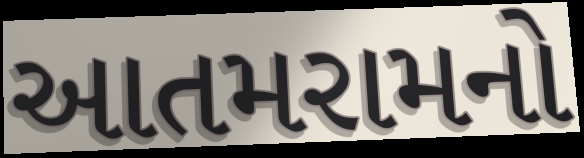
આતમરામનો